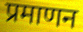
प्रमाणन